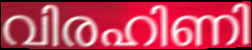
വിരഹിണി